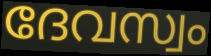
ദേവസ്വം